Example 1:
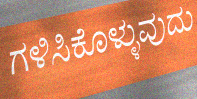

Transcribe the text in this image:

ಗಳಿಸಿಕೊಳ್ಳುವುದು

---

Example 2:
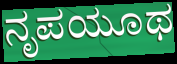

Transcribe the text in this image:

ನೃಪಯೂಥ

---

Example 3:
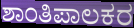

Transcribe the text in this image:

ಶಾಂತಿಪಾಲಕರ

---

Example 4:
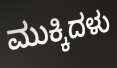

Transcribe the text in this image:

ಮುಕ್ಕಿದಳು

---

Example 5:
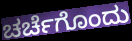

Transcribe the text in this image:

ಚರ್ಚೆಗೊಂದು